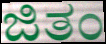
ಜಿತಂ